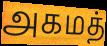
அகமத்